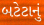
બટેટાનું